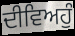
ਦੀਵਿਅਹੁੰ